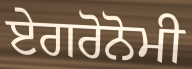
ਏਗਰੋਨੋਮੀ